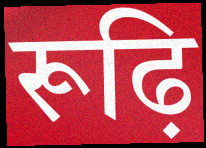
रूढ़ि